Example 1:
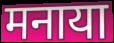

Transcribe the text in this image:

मनाया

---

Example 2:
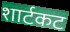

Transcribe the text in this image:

शार्टकट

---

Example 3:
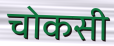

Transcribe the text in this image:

चोकसी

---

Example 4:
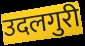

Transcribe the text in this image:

उदलगुरी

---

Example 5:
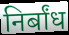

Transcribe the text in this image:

निर्बांध